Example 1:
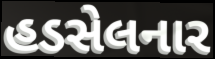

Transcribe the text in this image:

હડસેલનાર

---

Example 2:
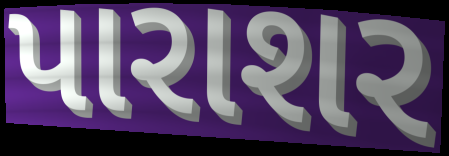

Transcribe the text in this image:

પારાશર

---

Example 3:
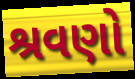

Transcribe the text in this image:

શ્રવણો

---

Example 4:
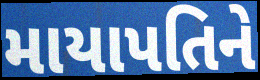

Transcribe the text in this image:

માયાપતિને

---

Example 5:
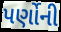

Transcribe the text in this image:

પર્ણોની